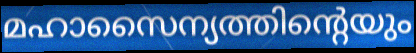
മഹാസൈന്യത്തിന്റെയും